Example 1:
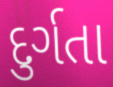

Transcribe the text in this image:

દુર્ગતા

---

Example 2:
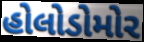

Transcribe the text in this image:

હોલોડોમોર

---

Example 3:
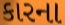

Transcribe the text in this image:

કારના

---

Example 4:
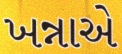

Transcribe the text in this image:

ખન્નાએ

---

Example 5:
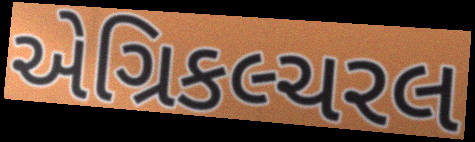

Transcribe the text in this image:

એગ્રિકલ્ચરલ